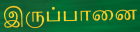
இருப்பானை